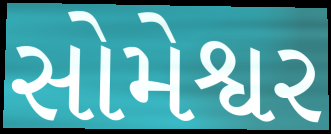
સોમેશ્વર